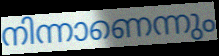
നിന്നാണെന്നും